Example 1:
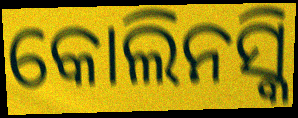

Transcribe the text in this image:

କୋଲିନସ୍କି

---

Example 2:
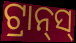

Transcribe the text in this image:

ଟ୍ରାନ୍‍ସ୍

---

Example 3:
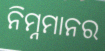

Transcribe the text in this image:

ନିମ୍ନମାନର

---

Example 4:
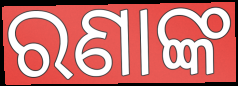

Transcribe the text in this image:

ରଣାଙ୍କ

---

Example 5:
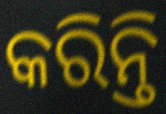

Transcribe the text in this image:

କରିନ୍ତି